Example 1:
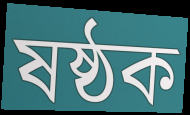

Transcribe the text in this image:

ষষ্ঠক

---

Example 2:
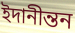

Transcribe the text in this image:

ইদানীন্তন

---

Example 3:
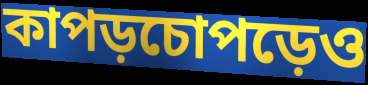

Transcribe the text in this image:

কাপড়চোপড়েও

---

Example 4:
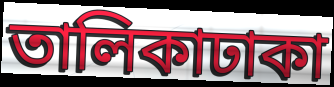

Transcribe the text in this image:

তালিকাঢাকা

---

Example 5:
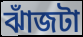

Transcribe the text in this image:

ঝাঁজটা